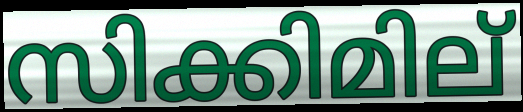
സിക്കിമില്